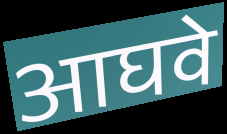
आघवे